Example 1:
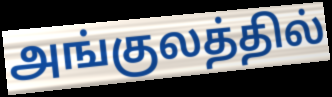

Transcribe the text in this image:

அங்குலத்தில்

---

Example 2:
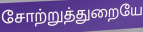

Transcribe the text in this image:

சோற்றுத்துறையே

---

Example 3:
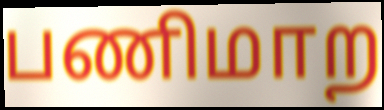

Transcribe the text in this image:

பணிமாற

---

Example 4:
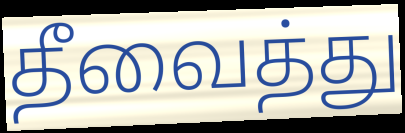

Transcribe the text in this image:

தீவைத்து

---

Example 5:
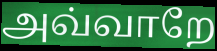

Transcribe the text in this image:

அவ்வாறே